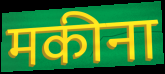
मकीना